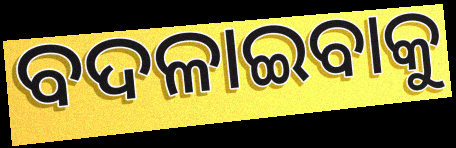
ବଦଳାଇବାକୁ